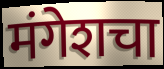
मंगेशचा